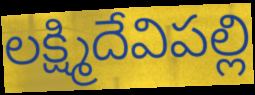
లక్ష్మిదేవిపల్లి